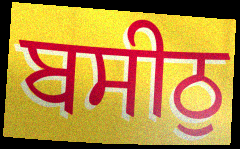
ਬਸੀਠੁ